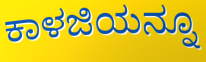
ಕಾಳಜಿಯನ್ನೂ